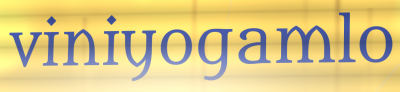
viniyogamlo